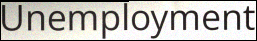
Unemployment